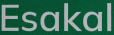
Esakal